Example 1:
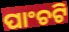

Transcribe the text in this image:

ପାଂଚଟି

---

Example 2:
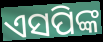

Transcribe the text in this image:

ଏସପିଙ୍କ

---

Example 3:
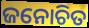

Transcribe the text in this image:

ଜନୋଚିତ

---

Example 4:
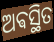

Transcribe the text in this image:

ଅଵସ୍ଥିତ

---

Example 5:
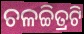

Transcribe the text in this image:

ଚଳଚ୍ଚିତ୍ରଟି